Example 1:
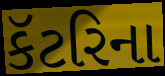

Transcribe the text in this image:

કૅટરિના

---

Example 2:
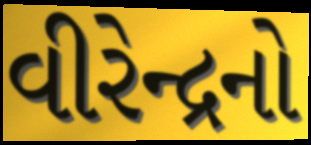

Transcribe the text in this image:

વીરેન્દ્રનો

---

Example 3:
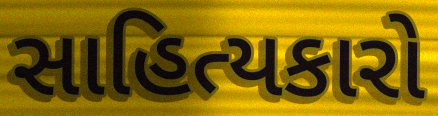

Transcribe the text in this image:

સાહિત્યકારો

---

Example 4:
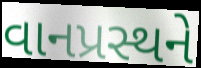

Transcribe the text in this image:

વાનપ્રસ્થને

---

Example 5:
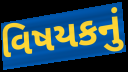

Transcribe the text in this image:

વિષયકનું